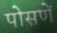
पोसणें